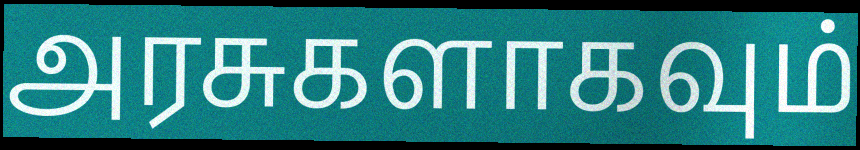
அரசுகளாகவும்